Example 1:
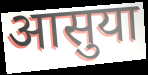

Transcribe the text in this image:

आसुया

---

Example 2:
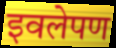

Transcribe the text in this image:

इवलेपण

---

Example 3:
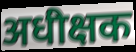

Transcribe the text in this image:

अधीक्षक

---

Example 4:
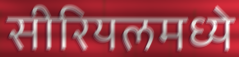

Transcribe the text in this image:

सीरियलमध्ये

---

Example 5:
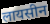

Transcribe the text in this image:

लायसीन